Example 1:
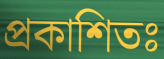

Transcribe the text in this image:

প্রকাশিতঃ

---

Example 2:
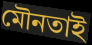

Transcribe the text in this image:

মৌনতাই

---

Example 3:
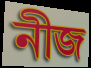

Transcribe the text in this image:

নীজ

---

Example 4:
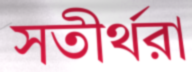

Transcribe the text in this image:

সতীর্থরা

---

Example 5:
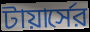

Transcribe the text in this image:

টায়ার্সের